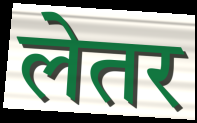
लेतर